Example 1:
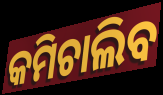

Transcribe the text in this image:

କମିଚାଲିବ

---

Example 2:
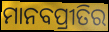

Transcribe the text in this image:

ମାନବପ୍ରୀତିର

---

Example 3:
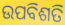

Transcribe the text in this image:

ଉପବିଶତି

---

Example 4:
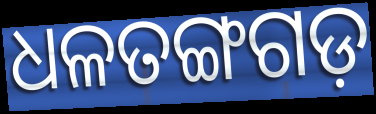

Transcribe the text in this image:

ଧଳତଙ୍ଗଗଡ଼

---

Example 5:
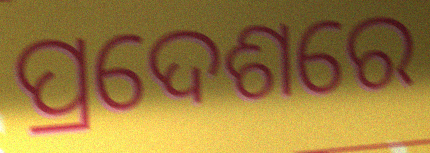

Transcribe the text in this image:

ପ୍ରଦେଶରେ